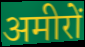
अमीरों